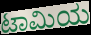
ಟಾಮಿಯ